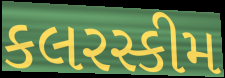
કલરસ્કીમ